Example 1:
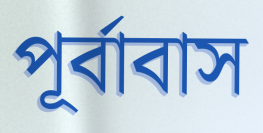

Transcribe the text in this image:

পূর্বাবাস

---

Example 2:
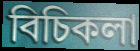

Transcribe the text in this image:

বিচিকলা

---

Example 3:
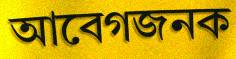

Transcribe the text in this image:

আবেগজনক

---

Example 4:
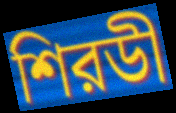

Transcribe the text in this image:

শিরডী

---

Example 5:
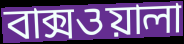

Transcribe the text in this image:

বাক্সওয়ালা